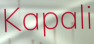
Kapali